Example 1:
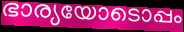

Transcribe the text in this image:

ഭാര്യയോടൊപ്പം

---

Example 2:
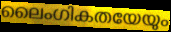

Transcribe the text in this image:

ലൈംഗികതയേയും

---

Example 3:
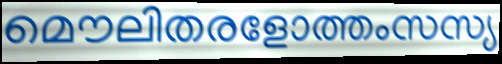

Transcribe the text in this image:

മൌലിതരളോത്തംസസ്യ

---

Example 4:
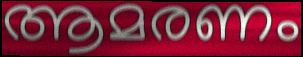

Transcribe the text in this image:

ആമരണം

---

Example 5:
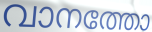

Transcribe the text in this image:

വാനത്തോ